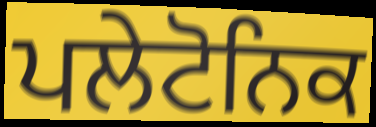
ਪਲੇਟੋਨਿਕ